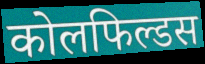
कोलफिल्डस